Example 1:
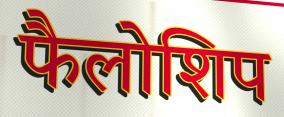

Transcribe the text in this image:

फैलोशिप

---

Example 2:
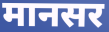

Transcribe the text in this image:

मानसर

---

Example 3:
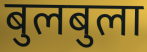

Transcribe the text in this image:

बुलबुला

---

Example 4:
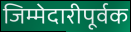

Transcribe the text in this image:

जिम्मेदारीपूर्वक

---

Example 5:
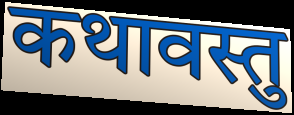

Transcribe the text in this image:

कथावस्तु